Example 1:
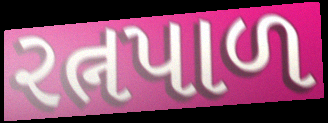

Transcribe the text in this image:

રત્નપાળ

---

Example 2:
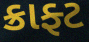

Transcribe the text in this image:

ક્રાફ્ટ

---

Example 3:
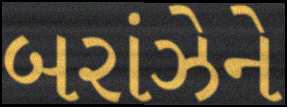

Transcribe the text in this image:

બરાંઝેને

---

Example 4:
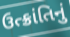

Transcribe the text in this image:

ઉત્ક્રાંતિનું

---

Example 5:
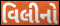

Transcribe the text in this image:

વિલીનો